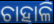
ଚାହାଳି